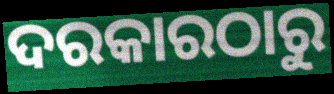
ଦରକାରଠାରୁ